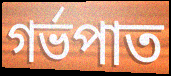
গর্ভপাত